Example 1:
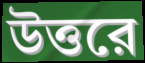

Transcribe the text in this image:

উত্তরে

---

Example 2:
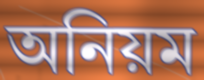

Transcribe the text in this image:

অনিয়ম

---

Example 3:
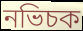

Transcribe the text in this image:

নভিচক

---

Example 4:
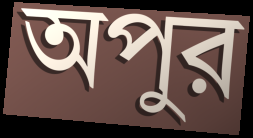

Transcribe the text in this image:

অপুর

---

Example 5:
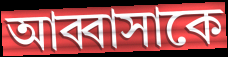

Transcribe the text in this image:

আব্বাসাকে